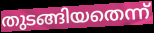
തുടങ്ങിയതെന്ന്